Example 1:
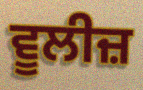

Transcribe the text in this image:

ਵੂਲੀਜ਼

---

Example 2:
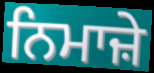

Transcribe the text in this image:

ਨਿਮਾਜ਼ੇ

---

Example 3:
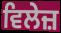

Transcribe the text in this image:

ਵਿਲੇਜ਼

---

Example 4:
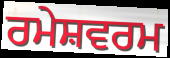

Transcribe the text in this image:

ਰਮੇਸ਼ਵਰਮ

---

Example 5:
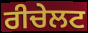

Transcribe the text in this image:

ਰੀਚੇਲਟ